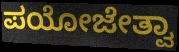
ಪಯೋಜೇತ್ವಾ